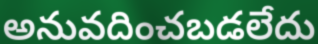
అనువదించబడలేదు